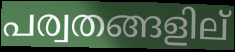
പര്വതങ്ങളില്